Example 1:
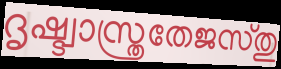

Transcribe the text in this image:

ദൃഷ്ട്വാസ്ത്രതേജസ്തു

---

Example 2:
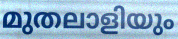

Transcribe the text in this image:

മുതലാളിയും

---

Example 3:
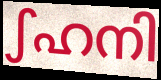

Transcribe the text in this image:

ഽഹനി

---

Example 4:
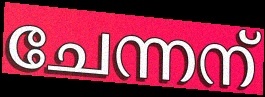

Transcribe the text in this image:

ചേന്നന്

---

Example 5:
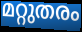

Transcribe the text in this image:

മറ്റുതരം